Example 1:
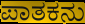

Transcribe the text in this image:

ಪಾತಕನು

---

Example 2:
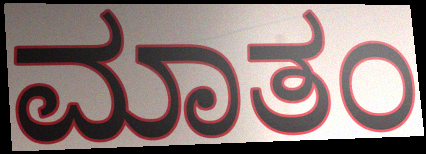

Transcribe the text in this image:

ಮಾತಂ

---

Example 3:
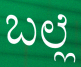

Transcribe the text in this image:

ಬಲ್ಲೆ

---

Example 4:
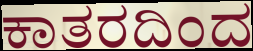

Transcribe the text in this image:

ಕಾತರದಿಂದ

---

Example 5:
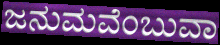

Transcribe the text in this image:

ಜನುಮವೆಂಬುವಾ